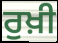
ਰੁਖ਼ੀ